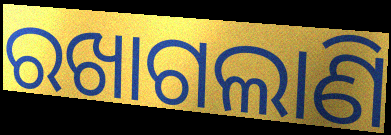
ରଖାଗଲାଣି